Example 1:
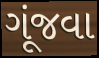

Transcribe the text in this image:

ગૂંજવા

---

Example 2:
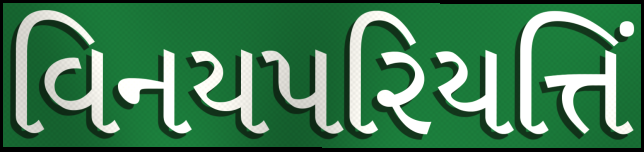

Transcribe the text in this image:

વિનયપરિયત્તિં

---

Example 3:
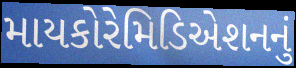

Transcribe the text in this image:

માયકોરેમિડિએશનનું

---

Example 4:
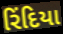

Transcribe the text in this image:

રિંદિયા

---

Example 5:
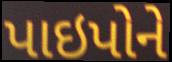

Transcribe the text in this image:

પાઇપોને